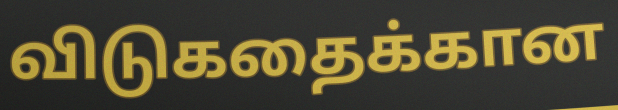
விடுகதைக்கான